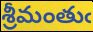
శ్రీమంతుఁ